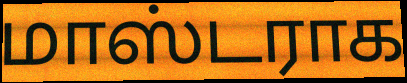
மாஸ்டராக